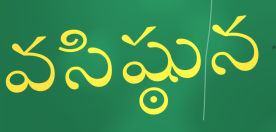
వసిష్ఠున